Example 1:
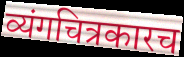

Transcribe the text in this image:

व्यंगचित्रकारच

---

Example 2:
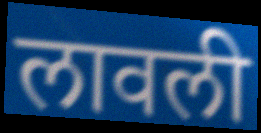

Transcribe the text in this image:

लावली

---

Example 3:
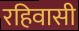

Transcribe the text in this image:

रहिवासी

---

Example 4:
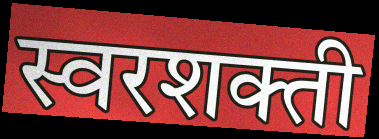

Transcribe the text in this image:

स्वरशक्ती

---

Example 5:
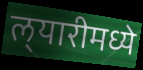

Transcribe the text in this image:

ल्यारीमध्ये